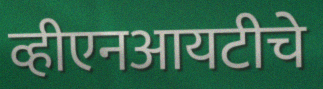
व्हीएनआयटीचे